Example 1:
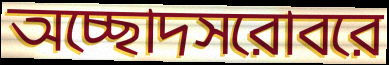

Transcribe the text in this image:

অচ্ছোদসরোবরে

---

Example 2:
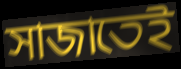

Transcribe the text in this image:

সাজাতেই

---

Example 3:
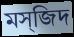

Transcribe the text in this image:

মস্জিদ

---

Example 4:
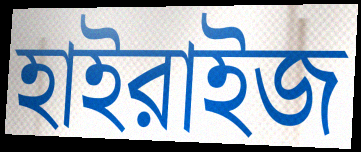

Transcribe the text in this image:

হাইরাইজ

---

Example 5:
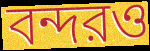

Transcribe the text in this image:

বন্দরও